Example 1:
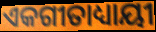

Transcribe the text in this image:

ଏକଗୀତାଧ୍ୟାୟୀ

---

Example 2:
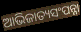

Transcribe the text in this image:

ଆଭିଜାତ୍ୟସଂପନ୍ନା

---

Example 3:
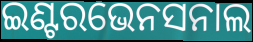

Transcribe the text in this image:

ଇଣ୍ଟରଭେନସନାଲ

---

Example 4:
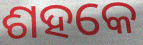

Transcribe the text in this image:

ଶହକେ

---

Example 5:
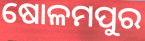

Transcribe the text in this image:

ଷୋଳମପୁର